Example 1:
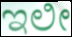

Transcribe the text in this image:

ಇಲೀ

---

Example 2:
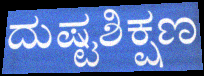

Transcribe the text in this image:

ದುಷ್ಟಶಿಕ್ಷಣ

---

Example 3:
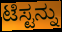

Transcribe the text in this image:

ಟೆಸ್ಟನ್ನು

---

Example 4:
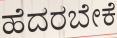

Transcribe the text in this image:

ಹೆದರಬೇಕೆ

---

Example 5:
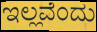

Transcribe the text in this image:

ಇಲ್ಲವೆಂದು